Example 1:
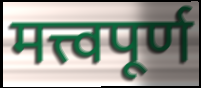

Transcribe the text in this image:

मत्त्वपूर्ण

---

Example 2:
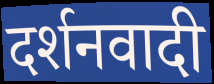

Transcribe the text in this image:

दर्शनवादी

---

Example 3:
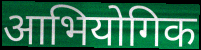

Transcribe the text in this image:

आभियोगिक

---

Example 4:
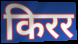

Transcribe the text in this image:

किरर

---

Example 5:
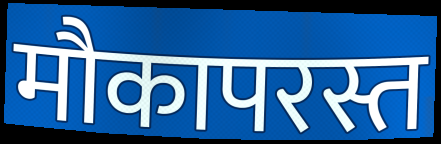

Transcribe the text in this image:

मौकापरस्त